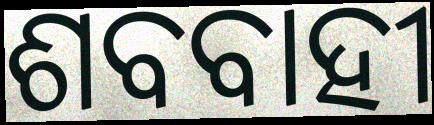
ଶବବାହୀ